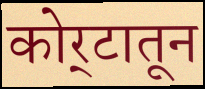
कोर्टातून